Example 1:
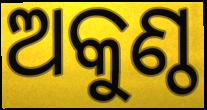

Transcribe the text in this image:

ଅକୁଣ୍ଠ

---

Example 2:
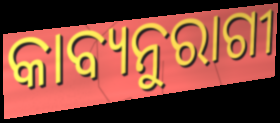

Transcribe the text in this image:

କାବ୍ୟନୁରାଗୀ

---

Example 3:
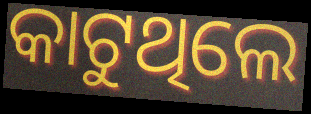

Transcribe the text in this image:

କାଟୁଥିଲେ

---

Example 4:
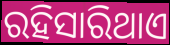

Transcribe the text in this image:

ରହିସାରିଥାଏ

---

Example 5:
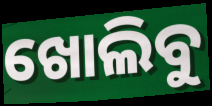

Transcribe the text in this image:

ଖୋଲିବୁ